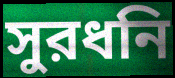
সুরধনি